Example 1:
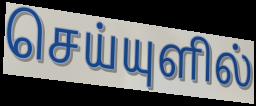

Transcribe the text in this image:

செய்யுளில்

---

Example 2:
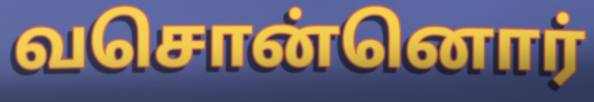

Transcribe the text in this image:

வசொன்னொர்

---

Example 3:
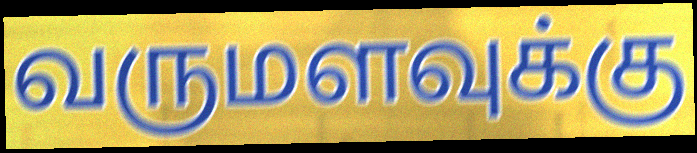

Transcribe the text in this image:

வருமளவுக்கு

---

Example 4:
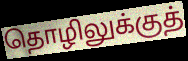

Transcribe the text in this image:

தொழிலுக்குத்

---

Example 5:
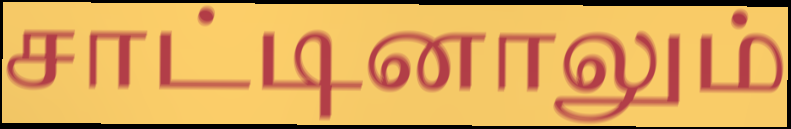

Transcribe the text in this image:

சாட்டினாலும்